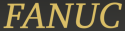
FANUC